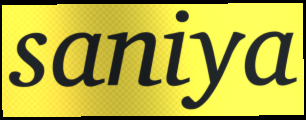
saniya